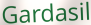
Gardasil